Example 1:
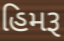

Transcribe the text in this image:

હિમરૂ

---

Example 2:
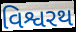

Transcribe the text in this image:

વિશ્વરથ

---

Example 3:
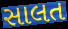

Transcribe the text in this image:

સાલત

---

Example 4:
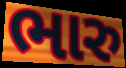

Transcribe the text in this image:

ભારુ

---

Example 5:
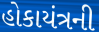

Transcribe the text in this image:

હોકાયંત્રની